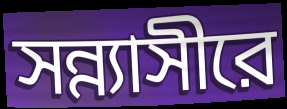
সন্ন্যাসীরে